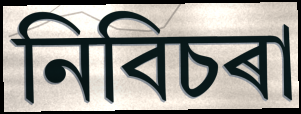
নিবিচৰা